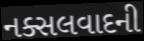
નક્સલવાદની